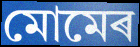
মোমেৰ